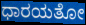
ಧಾರಯತೋ